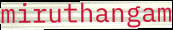
miruthangam